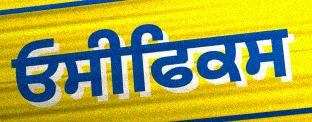
ਓਸੀਫਿਕਸ